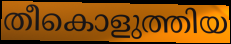
തീകൊളുത്തിയ